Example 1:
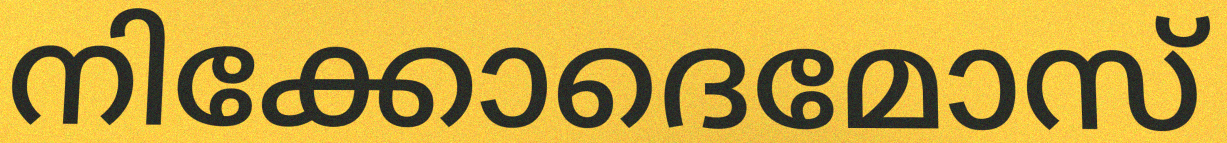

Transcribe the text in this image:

നിക്കോദെമോസ്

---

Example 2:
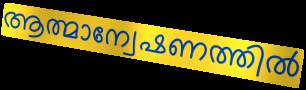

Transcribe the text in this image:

ആത്മാന്വേഷണത്തിൽ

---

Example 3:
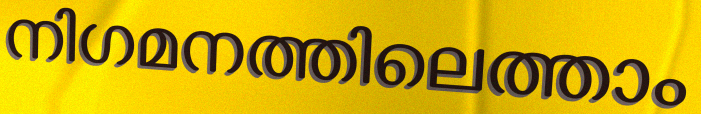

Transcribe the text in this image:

നിഗമനത്തിലെത്താം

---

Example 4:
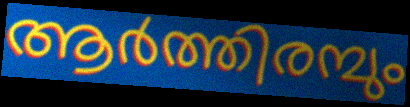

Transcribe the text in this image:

ആർത്തിരമ്പും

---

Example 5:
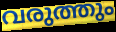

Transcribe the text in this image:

വരുത്തും